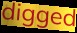
digged